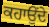
ਕਹਾਉਂਦੇ